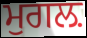
ਮੁਗਲ਼